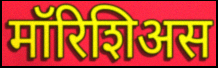
मॉरिशिअस